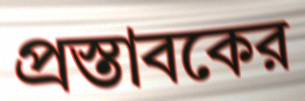
প্রস্তাবকের